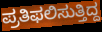
ಪ್ರತಿಫಲಿಸುತ್ತಿದ್ದ